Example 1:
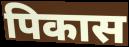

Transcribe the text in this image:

पिकास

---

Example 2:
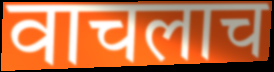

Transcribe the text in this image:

वाचलाच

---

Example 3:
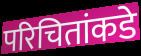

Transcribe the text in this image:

परिचितांकडे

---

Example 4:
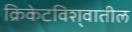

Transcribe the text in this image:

क्रिकेटविश्वातील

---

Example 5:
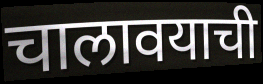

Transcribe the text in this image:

चालावयाची